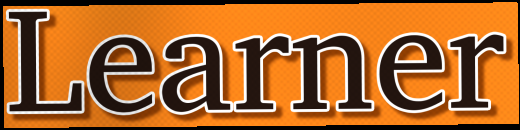
Learner